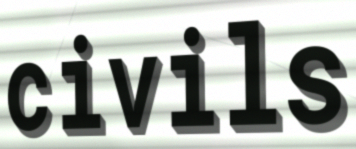
civils